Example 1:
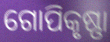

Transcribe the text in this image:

ଗୋପିକୃଷ୍ଣା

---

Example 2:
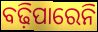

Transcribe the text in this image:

ବଢ଼ିପାରେନି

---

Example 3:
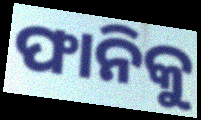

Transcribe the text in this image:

ଫାନିକୁ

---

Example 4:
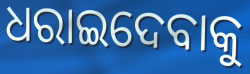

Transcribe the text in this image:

ଧରାଇଦେବାକୁ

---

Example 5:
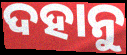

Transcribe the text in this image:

ଦହାନୁ